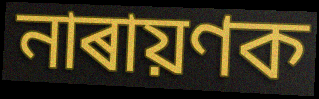
নাৰায়ণক